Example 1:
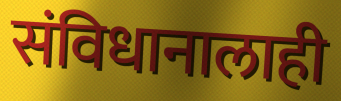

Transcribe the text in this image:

संविधानालाही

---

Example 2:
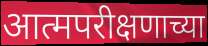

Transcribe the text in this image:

आत्मपरीक्षणाच्या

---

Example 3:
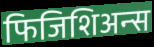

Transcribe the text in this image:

फिजिशिअन्स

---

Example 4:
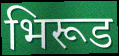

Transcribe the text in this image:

भिरूड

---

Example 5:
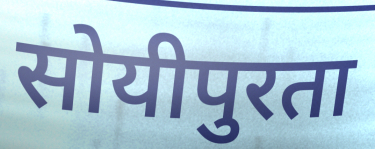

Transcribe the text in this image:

सोयीपुरता